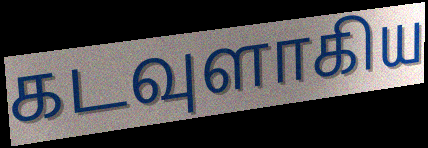
கடவுளாகிய